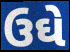
ઉઘે